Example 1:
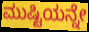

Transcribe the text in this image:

ಮುಷ್ಟಿಯನ್ನೇ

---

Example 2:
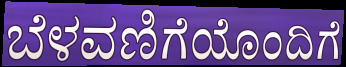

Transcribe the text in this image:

ಬೆಳವಣಿಗೆಯೊಂದಿಗೆ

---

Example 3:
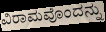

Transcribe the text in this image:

ವಿರಾಮವೊಂದನ್ನು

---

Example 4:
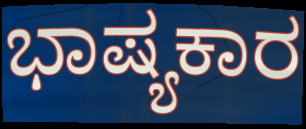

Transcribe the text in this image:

ಭಾಷ್ಯಕಾರ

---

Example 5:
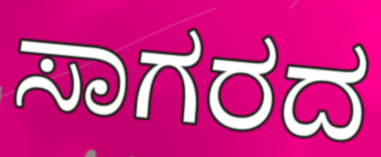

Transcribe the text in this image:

ಸಾಗರದ